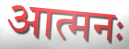
आत्मनः